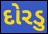
દોરડુ